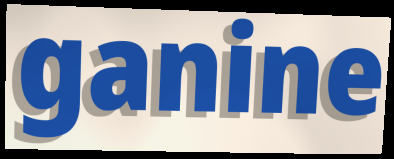
ganine